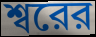
শ্বরের